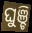
ଘୁଞ୍ଚି